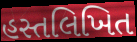
હસ્તલિખિત